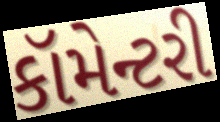
કૉમેન્ટરી